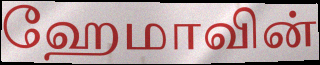
ஹேமாவின்